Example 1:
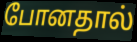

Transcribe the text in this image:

போனதால்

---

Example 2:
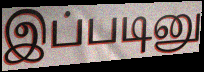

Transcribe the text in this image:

இப்படினு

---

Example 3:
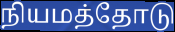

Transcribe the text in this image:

நியமத்தோடு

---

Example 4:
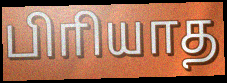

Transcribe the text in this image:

பிரியாத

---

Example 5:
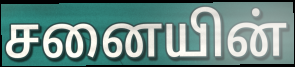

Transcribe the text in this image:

சனையின்